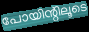
പോയിന്റിലൂടെ